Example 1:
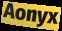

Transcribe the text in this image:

Aonyx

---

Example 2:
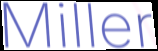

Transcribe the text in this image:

Miller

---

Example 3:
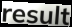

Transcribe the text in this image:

result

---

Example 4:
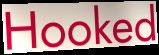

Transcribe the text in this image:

Hooked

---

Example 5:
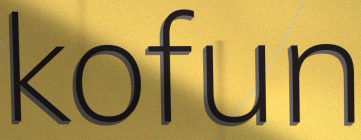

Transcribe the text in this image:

kofun